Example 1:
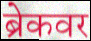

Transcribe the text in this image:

ब्रेकवर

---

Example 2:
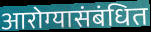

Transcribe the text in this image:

आरोग्यासंबंधित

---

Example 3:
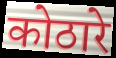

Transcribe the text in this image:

कोठारे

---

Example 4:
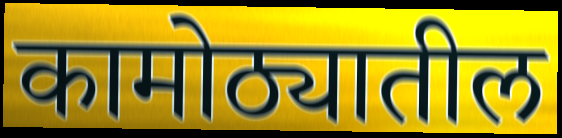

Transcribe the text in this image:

कामोठ्यातील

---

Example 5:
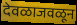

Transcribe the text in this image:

देवळाजवळून